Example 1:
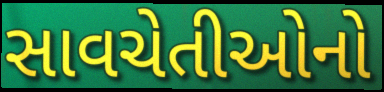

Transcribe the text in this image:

સાવચેતીઓનો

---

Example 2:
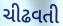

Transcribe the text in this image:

ચીઢવતી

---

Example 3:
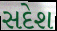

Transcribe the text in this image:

સદેશ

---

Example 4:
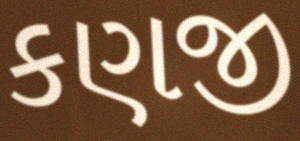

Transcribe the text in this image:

કણજી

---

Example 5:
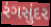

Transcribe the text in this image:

રંગસુંદર